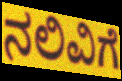
ನಲಿವಿಗೆ